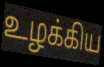
உழக்கிய